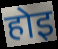
होइ